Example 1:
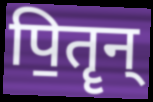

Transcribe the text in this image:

पि॒तॄन्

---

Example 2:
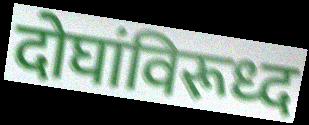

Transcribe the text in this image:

दोघांविरूध्द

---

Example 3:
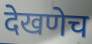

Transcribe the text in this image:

देखणेच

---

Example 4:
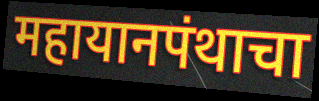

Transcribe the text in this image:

महायानपंथाचा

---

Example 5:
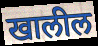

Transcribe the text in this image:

खालील